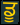
ਡੂ